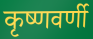
कृष्णवर्णी